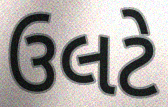
ઉલટે